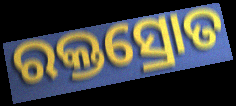
ରକ୍ତସ୍ରୋତ